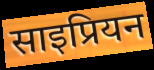
साइप्रियन